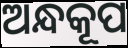
ଅନ୍ଧକୂପ